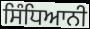
ਸਿੰਧਿਆਨੀ